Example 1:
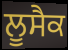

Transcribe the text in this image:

ਲੂਸੈਕ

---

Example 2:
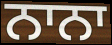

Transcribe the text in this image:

ਨਾਨਾ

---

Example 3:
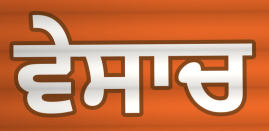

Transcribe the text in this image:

ਵੇਸਾਚ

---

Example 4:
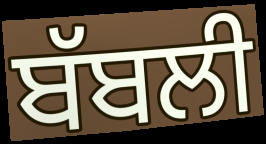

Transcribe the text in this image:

ਬੱਬਲੀ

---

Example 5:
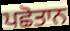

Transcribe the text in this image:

ਪਛੋਤਾਨ